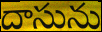
దాసును